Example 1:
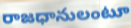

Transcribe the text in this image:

రాజధానులంటూ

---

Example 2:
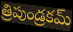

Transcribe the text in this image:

త్రిపుండ్రకమ్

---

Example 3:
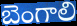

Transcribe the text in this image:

బెంగాలి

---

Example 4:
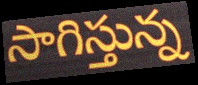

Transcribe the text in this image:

సాగిస్తున్న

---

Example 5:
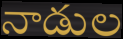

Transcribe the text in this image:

నాడుల